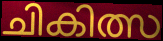
ചികിത്സ